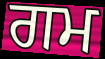
ਗਮ